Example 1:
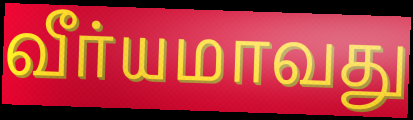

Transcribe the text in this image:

வீர்யமாவது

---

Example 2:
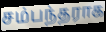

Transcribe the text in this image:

சம்பந்தராக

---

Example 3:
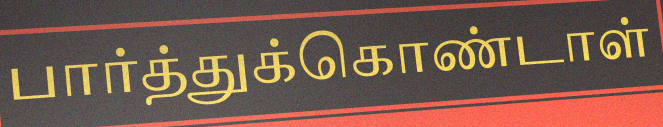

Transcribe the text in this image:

பார்த்துக்கொண்டாள்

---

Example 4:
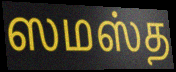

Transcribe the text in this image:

ஸமஸ்த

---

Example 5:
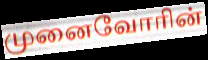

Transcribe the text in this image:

முனைவோரின்